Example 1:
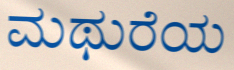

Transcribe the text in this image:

ಮಥುರೆಯ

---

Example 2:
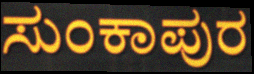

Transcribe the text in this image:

ಸುಂಕಾಪುರ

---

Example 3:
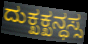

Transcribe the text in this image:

ದುಕ್ಖಕ್ಖನ್ಧಸ್ಸ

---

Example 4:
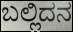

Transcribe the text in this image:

ಬಲ್ಲಿದನ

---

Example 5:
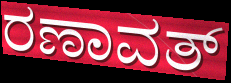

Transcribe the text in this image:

ರಣಾವತ್